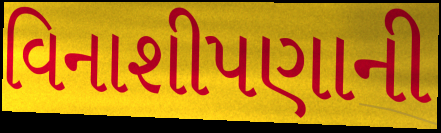
વિનાશીપણાની